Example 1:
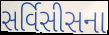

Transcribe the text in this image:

સર્વિસીસના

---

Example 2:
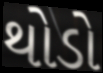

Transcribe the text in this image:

થોડો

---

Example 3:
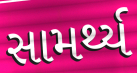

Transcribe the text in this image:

સામર્થ્ય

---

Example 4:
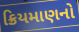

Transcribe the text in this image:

ક્રિયમાણનો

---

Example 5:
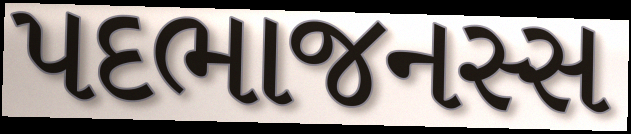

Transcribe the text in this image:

પદભાજનસ્સ